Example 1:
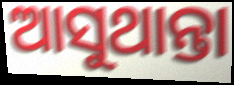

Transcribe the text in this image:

ଆସୁଥାନ୍ତା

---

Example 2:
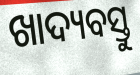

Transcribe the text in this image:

ଖାଦ୍ୟବସ୍ତୁ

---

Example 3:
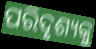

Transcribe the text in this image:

ପରିଦୃଶ୍ୟକୁ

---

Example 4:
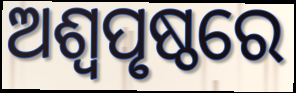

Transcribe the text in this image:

ଅଶ୍ଵପୃଷ୍ଠରେ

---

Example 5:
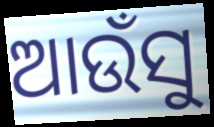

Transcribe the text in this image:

ଆଉଁସୁ